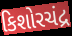
કિશોરચંદ્ર